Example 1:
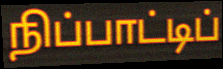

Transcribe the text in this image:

நிப்பாட்டிப்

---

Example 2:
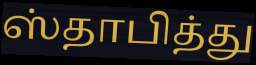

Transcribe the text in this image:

ஸ்தாபித்து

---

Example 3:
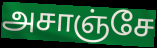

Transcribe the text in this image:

அசாஞ்சே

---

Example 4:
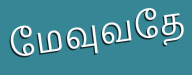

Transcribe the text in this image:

மேவுவதே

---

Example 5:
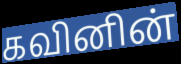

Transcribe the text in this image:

கவினின்